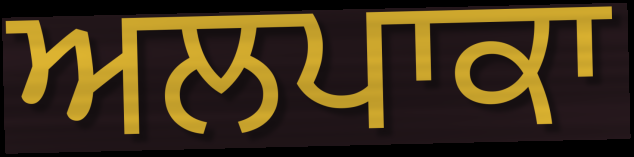
ਅਲਪਾਕਾ